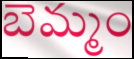
బెమ్మం